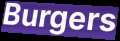
Burgers